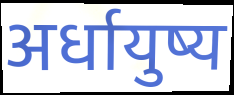
अर्धायुष्य